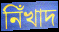
নিঁখাদ